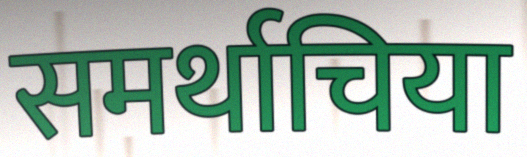
समर्थाचिया